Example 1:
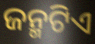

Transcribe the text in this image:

ଜନ୍ମଟିଏ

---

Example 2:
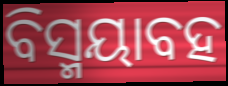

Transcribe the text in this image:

ବିସ୍ମୟାବହ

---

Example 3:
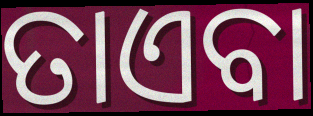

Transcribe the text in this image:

ତାଏବା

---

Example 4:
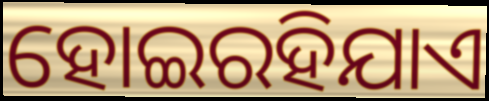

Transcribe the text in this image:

ହୋଇରହିଯାଏ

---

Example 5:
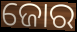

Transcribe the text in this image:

ଜୋର